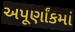
અપૂર્ણાંકમાં